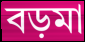
বড়মা